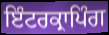
ਇੰਟਰਕ੍ਰਾਪਿੰਗ